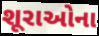
શૂરાઓના